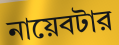
নায়েবটার